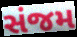
સંજમ